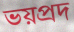
ভয়প্রদ